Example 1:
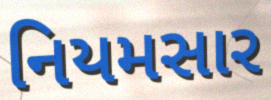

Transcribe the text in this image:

નિયમસાર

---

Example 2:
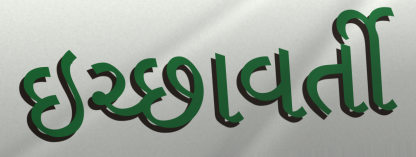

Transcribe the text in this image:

ઇચ્છાવર્તી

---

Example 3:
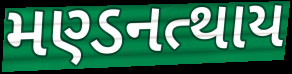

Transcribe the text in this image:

મણ્ડનત્થાય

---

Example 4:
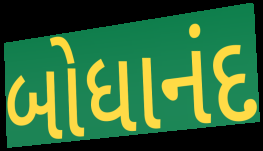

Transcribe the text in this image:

બોધાનંદ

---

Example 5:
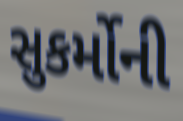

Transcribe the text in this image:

સુકર્મોની